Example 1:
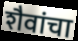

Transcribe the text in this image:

शैवांचा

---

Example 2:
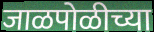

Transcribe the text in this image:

जाळपोळीच्या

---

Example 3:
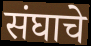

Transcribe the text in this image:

संघाचे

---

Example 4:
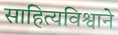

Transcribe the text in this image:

साहित्यविश्वाने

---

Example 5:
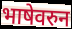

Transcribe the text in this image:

भाषेवरुन